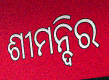
ଶୀମନ୍ଦିର